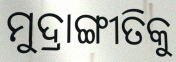
ମୁଦ୍ରାଙ୍ଗୀତିକୁ